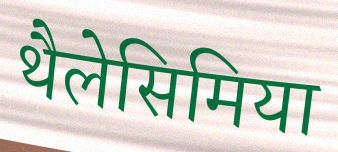
थैलेसिमिया